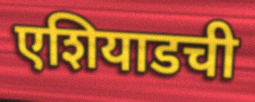
एशियाडची